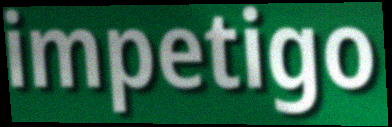
impetigo